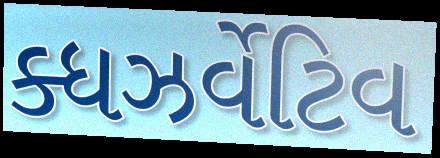
ક્ધઝર્વેટિવ